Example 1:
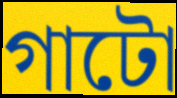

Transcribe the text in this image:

গাটো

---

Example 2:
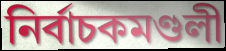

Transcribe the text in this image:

নিৰ্বাচকমণ্ডলী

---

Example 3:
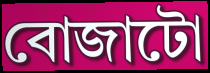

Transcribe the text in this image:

বোজাটো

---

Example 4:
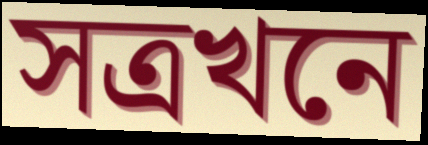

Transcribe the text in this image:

সত্ৰখনে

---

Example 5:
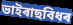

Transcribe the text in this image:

ভাইৰাছবিধৰ